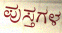
ಪುಸ್ತಗಳ